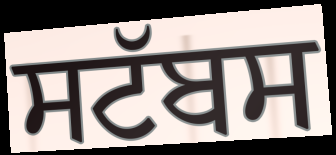
ਸਟੱਬਸ